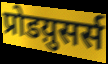
प्रोडय़ुसर्स